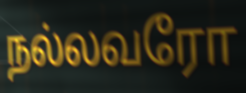
நல்லவரோ